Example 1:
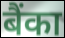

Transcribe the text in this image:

बैंका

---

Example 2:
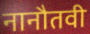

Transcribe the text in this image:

नानौतवी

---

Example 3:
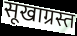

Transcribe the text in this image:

सूखाग्रस्त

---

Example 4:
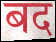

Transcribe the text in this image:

बद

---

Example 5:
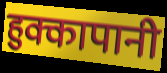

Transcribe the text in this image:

हुक्कापानी